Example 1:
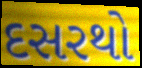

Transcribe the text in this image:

દસરથો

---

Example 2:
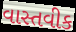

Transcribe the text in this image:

વાસ્તવીક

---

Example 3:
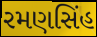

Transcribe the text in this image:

રમણસિંહ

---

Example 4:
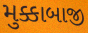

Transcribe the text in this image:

મુક્કાબાજી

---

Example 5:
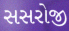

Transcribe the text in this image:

સસરોજી